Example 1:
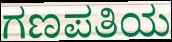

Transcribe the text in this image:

ಗಣಪತಿಯ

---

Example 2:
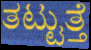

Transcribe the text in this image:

ತಟ್ಟುತ್ತೆ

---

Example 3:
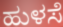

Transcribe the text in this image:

ಹುಳಸೆ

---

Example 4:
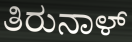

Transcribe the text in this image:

ತಿರುನಾಳ್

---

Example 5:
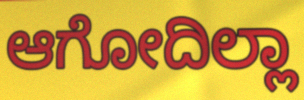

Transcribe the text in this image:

ಆಗೋದಿಲ್ಲಾ